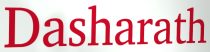
Dasharath